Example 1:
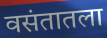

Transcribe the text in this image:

वसंतातला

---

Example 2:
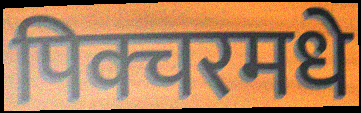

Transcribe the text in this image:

पिक्चरमधे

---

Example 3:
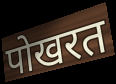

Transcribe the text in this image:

पोखरत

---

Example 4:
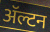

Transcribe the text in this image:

ॲल्टन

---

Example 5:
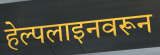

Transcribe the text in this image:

हेल्पलाइनवरून